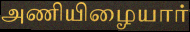
அணியிழையார்